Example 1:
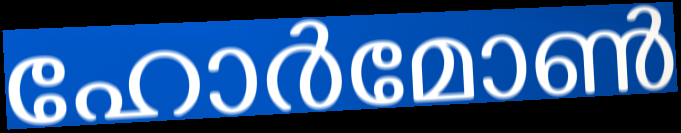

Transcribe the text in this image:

ഹോർമോൺ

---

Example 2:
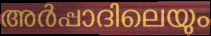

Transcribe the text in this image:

അർപ്പാദിലെയും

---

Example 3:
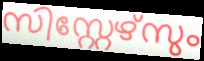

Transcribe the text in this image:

സിസ്റ്റേഴ്സും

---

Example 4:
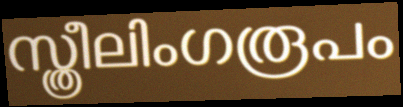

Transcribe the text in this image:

സ്ത്രീലിംഗരൂപം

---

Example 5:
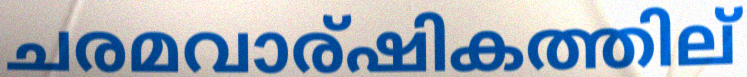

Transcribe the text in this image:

ചരമവാര്ഷികത്തില്